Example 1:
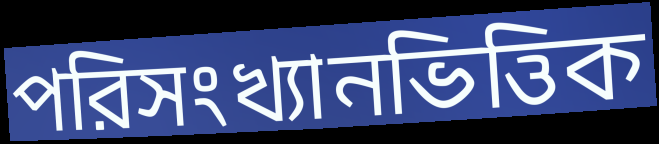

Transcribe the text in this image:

পরিসংখ্যানভিত্তিক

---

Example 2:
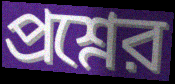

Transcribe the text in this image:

প্রশ্নের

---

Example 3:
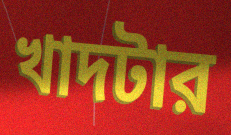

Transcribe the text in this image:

খাদটার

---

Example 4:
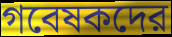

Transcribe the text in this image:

গবেষকদের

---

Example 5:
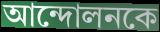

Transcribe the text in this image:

আন্দোলনকে